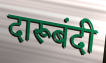
दारूबंदी